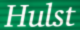
Hulst